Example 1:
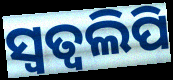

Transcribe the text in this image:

ସ୍ଵତ୍ଵଲିପି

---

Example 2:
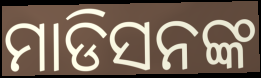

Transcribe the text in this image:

ମାଡିସନଙ୍କ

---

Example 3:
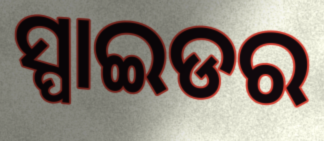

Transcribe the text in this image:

ସ୍ପାଇଡର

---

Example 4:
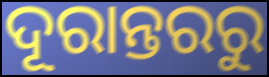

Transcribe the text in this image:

ଦୂରାନ୍ତରରୁ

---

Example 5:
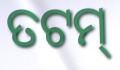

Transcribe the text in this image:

ତଟମ୍